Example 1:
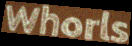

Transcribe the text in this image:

Whorls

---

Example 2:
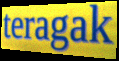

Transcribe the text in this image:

teragak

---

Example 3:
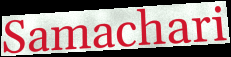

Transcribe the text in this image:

Samachari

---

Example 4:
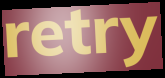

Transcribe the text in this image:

retry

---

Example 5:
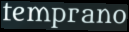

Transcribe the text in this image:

temprano